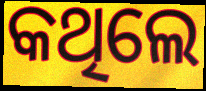
କଥିଲେ